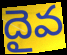
దైవ